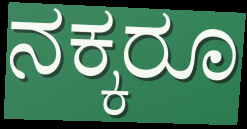
ನಕ್ಕರೂ